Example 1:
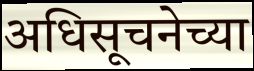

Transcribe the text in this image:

अधिसूचनेच्या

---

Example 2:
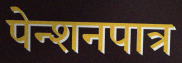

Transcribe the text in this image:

पेन्शनपात्र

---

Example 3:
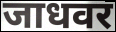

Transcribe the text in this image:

जाधवर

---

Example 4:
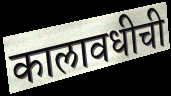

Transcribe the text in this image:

कालावधीची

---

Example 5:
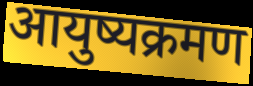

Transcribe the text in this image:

आयुष्यक्रमण